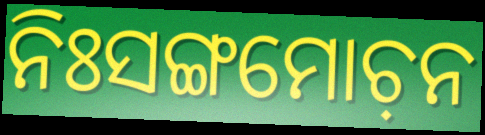
ନିଃସଙ୍ଗମୋଚ଼ନ